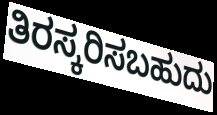
ತಿರಸ್ಕರಿಸಬಹುದು